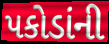
પકોડાંની